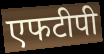
एफटीपी